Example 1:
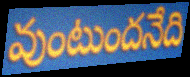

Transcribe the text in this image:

వుంటుందనేది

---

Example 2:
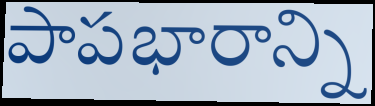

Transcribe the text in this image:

పాపభారాన్ని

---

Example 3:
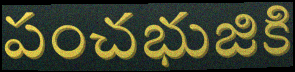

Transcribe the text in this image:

పంచభుజికి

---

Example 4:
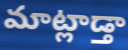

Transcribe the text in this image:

మాట్లాడ్తా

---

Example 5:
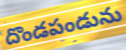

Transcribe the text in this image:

దొండపండును